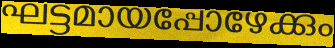
ഘട്ടമായപ്പോഴേക്കും